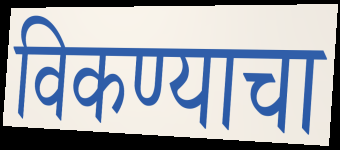
विकण्याचा